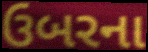
ઉબરના